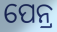
ପେନ୍ର